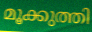
മൂക്കുത്തി